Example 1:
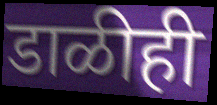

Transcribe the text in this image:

डाळीही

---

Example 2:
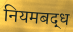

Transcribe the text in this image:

नियमबद्ध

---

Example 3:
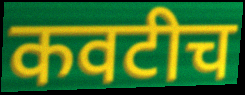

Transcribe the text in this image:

कवटीच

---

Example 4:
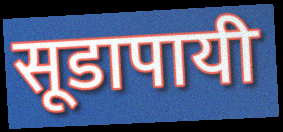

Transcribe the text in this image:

सूडापायी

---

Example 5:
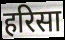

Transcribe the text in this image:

हरिसा